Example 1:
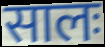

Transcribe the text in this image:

सालः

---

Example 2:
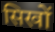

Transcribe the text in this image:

सिखों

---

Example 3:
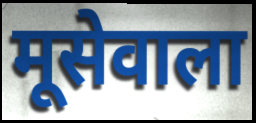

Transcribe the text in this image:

मूसेवाला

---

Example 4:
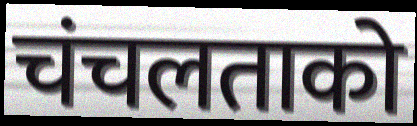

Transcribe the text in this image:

चंचलताको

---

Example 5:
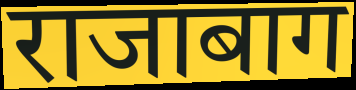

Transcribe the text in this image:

राजाबाग